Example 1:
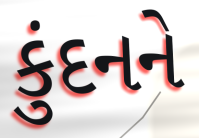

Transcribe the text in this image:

કુંદનને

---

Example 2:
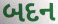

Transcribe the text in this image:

બદન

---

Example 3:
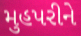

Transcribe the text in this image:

મુહપરીને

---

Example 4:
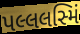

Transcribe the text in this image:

પલ્લલસ્મિં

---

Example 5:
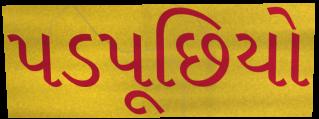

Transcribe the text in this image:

પડપૂછિયો